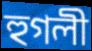
হুগলী